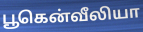
பூகென்வீலியா